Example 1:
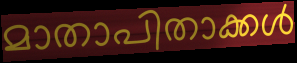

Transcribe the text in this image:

മാതാപിതാക്കൾ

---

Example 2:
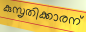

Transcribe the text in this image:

കുസൃതിക്കാരന്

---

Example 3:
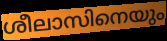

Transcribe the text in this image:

ശീലാസിനെയും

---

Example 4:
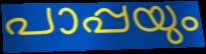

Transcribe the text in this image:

പാപ്പയും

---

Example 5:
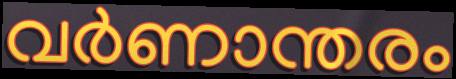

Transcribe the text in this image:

വർണാന്തരം